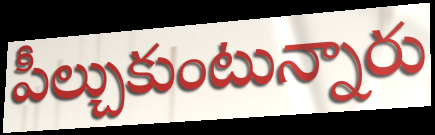
పీల్చుకుంటున్నారు